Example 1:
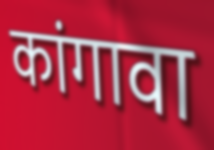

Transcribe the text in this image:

कांगावा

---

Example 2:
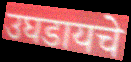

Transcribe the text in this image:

उघडायचे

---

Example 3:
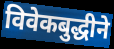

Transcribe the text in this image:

विवेकबुद्धीने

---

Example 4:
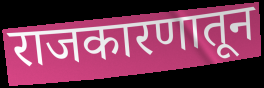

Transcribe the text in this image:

राजकारणातून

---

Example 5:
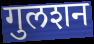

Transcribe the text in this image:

गुलशन